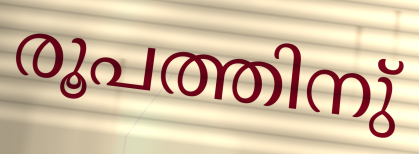
രൂപത്തിനു്